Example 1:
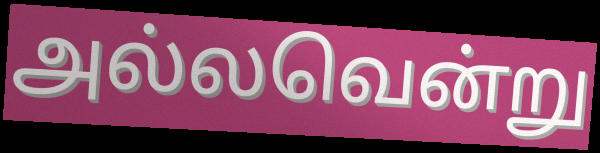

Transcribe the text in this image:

அல்லவென்று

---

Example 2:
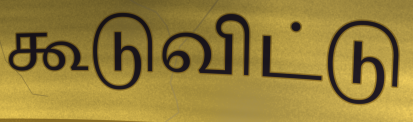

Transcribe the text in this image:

கூடுவிட்டு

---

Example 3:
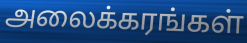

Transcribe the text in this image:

அலைக்கரங்கள்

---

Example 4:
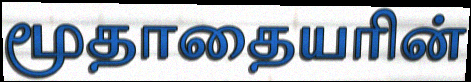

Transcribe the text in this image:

மூதாதையரின்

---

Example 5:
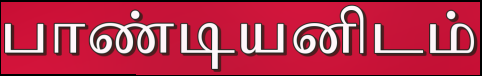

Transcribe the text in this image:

பாண்டியனிடம்